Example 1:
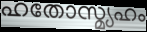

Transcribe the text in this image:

ഹതോസ്മ്യഹം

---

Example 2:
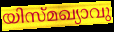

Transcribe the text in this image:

യിസ്മഖ്യാവു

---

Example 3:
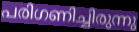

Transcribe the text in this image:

പരിഗണിച്ചിരുന്നു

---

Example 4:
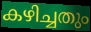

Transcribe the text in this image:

കഴിച്ചതും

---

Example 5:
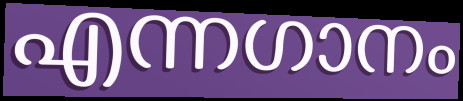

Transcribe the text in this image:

എന്നഗാനം